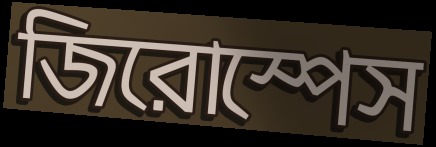
জিরোস্পেস